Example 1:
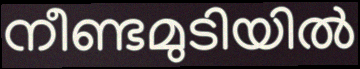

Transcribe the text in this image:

നീണ്ടമുടിയിൽ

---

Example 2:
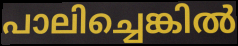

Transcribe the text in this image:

പാലിച്ചെങ്കിൽ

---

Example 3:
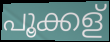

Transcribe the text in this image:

പൂക്കള്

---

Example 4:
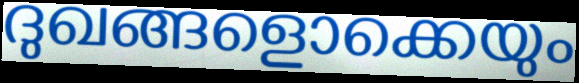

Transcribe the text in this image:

ദുഖങ്ങളൊക്കെയും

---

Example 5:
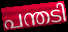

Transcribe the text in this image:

പന്തടി